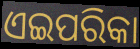
ଏଇପରିକା